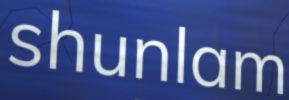
shunlam